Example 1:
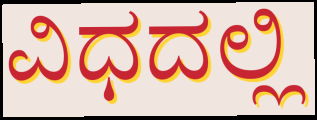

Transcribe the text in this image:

ವಿಧದಲ್ಲಿ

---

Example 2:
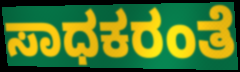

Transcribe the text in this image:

ಸಾಧಕರಂತೆ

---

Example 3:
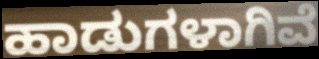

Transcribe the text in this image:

ಹಾಡುಗಳಾಗಿವೆ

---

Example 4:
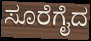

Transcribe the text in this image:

ಸೂರೆಗೈದ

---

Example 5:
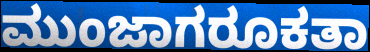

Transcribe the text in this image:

ಮುಂಜಾಗರೂಕತಾ